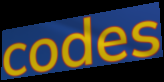
codes